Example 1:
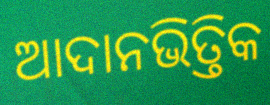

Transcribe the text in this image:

ଆଦାନଭିତ୍ତିକ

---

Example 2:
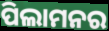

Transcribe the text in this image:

ପିଲାମନର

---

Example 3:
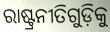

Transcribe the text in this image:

ରାଷ୍ଟ୍ରନୀତିଗୁଡ଼ିକୁ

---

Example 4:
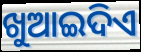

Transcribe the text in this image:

ଖୁଆଇଦିଏ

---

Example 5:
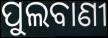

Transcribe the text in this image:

ପୁଲବାଣୀ